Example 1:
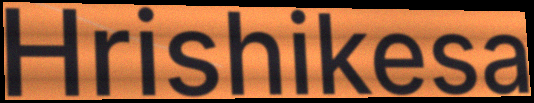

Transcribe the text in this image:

Hrishikesa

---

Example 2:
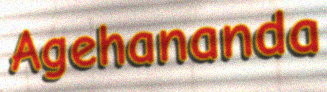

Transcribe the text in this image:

Agehananda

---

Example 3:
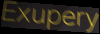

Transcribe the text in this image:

Exupery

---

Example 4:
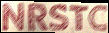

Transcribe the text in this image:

NRSTC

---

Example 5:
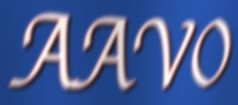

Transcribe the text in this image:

AAVO